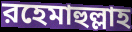
রহেমাহুল্লাহ